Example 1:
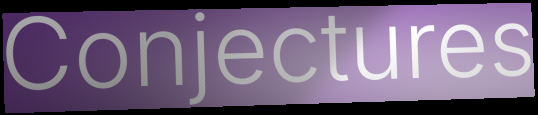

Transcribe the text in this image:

Conjectures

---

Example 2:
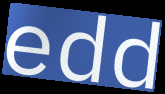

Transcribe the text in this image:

edd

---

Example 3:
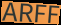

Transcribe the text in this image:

ARFF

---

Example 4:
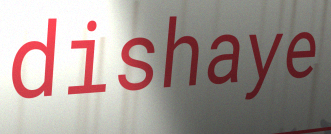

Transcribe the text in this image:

dishaye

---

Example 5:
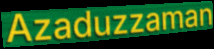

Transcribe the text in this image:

Azaduzzaman